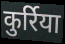
कुर्रिया